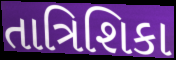
તાત્રિશિકા